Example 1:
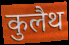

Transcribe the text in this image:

कुलैथ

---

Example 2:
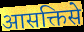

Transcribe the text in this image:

आसक्तिसे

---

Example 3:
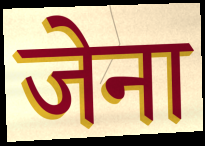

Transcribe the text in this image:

जेना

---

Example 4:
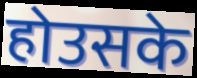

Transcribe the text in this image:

होउसके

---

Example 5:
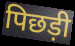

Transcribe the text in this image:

पिछड़ी